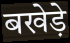
बखेड़े